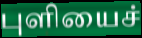
புளியைச்